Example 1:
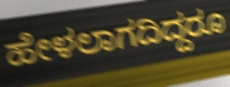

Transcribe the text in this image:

ಹೇಳಲಾಗದಿದ್ದರೂ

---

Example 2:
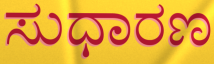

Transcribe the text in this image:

ಸುಧಾರಣ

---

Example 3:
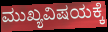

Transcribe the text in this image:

ಮುಖ್ಯವಿಷಯಕ್ಕೆ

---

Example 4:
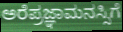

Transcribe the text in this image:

ಅರೆಪ್ರಜ್ಞಾಮನಸ್ಸಿಗೆ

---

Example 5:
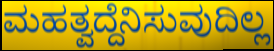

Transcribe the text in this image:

ಮಹತ್ವದ್ದೆನಿಸುವುದಿಲ್ಲ